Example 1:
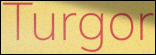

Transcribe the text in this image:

Turgor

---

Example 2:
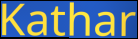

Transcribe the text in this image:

Kathar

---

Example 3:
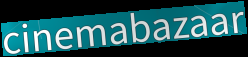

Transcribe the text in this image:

cinemabazaar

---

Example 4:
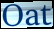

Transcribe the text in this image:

Oat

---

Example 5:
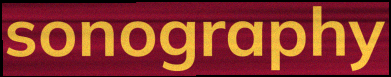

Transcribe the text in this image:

sonography